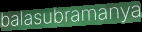
balasubramanya